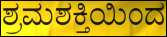
ಶ್ರಮಶಕ್ತಿಯಿಂದ